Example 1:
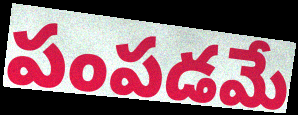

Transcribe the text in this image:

పంపడమే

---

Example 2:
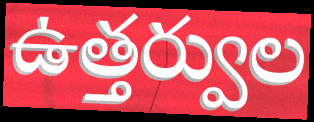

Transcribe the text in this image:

ఉత్తర్వుల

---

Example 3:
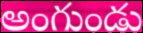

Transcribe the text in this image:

అంగుండు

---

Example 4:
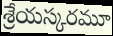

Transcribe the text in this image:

శ్రేయస్కరమూ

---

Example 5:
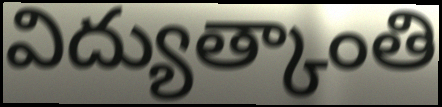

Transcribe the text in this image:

విద్యుత్కాంతి